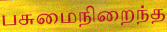
பசுமைநிறைந்த